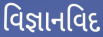
વિજ્ઞાનવિદ